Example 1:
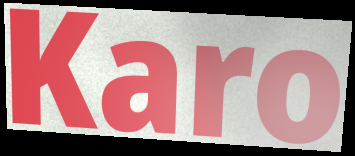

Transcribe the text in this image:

Karo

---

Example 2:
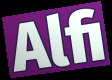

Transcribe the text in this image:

Alfi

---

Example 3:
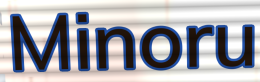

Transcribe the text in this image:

Minoru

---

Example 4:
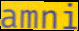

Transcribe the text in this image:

amni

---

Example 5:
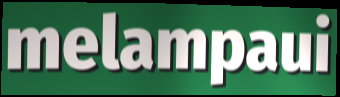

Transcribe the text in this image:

melampaui